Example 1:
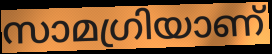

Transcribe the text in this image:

സാമഗ്രിയാണ്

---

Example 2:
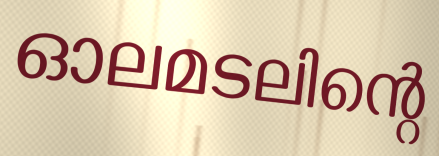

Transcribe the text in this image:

ഓലമടലിന്റെ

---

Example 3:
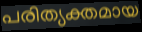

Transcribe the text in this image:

പരിത്യക്തമായ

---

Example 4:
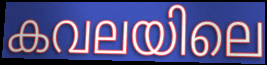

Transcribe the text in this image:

കവലയിലെ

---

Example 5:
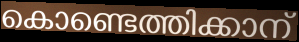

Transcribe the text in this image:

കൊണ്ടെത്തിക്കാന്